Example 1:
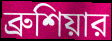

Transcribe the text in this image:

ব্রুশিয়ার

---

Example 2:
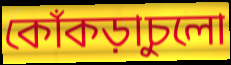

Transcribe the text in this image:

কোঁকড়াচুলো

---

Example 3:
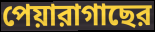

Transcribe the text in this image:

পেয়ারাগাছের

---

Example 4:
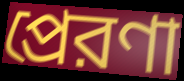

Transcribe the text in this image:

প্রেরণা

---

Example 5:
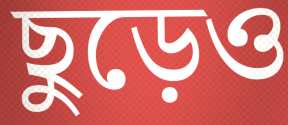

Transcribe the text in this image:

ছুড়েও